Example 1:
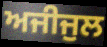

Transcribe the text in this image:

ਅਜੀਜੁਲ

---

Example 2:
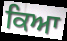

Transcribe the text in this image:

ਕਿਆ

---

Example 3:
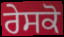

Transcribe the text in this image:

ਰੇਸਕੋ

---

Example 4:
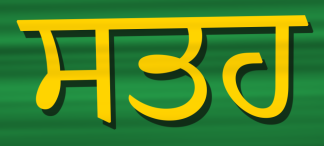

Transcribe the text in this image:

ਸਤਹ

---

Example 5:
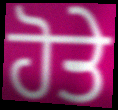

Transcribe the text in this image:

ਹੋਤੇ